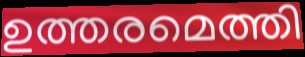
ഉത്തരമെത്തി